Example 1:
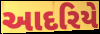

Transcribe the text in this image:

આદરિયે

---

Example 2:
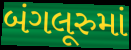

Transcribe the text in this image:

બંગલૂરુમાં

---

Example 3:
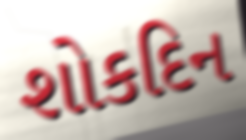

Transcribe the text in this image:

શોકદિન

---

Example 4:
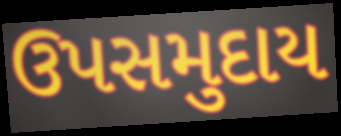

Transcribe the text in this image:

ઉપસમુદાય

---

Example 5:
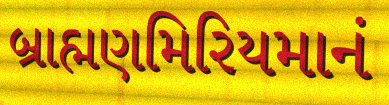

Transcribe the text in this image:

બ્રાહ્મણમિરિયમાનં